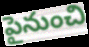
పైనుంచి